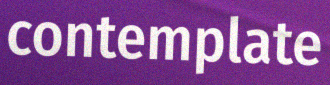
contemplate